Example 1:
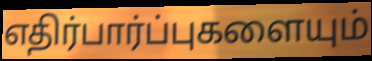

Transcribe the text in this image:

எதிர்பார்ப்புகளையும்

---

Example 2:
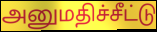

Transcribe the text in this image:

அனுமதிச்சீட்டு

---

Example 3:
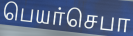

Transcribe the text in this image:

பெயர்செபா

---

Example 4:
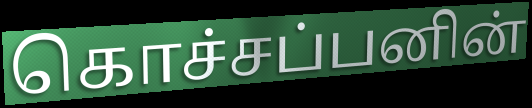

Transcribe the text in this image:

கொச்சப்பனின்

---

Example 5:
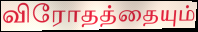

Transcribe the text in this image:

விரோதத்தையும்